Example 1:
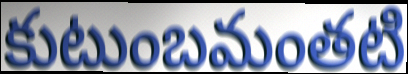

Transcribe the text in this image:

కుటుంబమంతటి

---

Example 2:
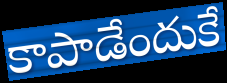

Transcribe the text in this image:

కాపాడేందుకే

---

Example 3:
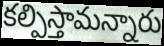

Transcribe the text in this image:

కల్పిస్తామన్నారు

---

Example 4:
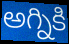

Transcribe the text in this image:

అగ్నికి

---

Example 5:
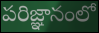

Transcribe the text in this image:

పరిజ్ఞానంలో